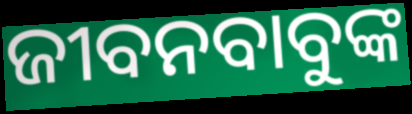
ଜୀବନବାବୁଙ୍କ